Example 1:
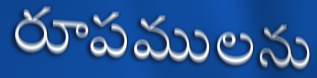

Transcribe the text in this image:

రూపములను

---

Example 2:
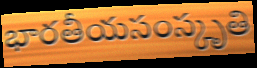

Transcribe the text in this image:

భారతీయసంస్కృతి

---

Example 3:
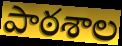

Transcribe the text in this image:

పాఠశాల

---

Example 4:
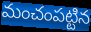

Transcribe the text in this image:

మంచంపట్టిన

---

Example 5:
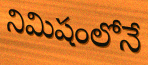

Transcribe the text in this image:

నిమిషంలోనే